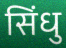
सिंधु